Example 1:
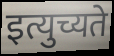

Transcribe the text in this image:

इत्युच्यते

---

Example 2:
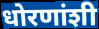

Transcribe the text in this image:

धोरणांशी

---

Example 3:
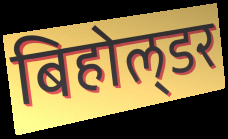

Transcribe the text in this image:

बिहोल्डर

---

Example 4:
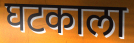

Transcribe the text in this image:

घटकाला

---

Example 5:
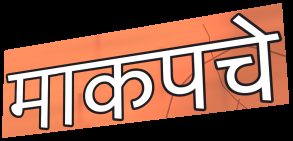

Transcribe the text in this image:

माकपचे